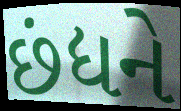
છંદ્યને